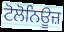
ਟੋਲੋਨਿਊਜ਼